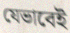
যেভাবেই